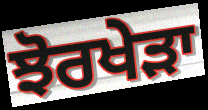
ਝੋਰਖੇੜਾ